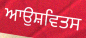
ਆਉਸ਼ਵਿਤਸ